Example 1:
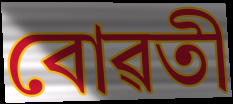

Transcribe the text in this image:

বোৱতী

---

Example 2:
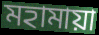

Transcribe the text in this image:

মহামায়া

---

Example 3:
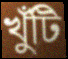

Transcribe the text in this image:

খুঁটি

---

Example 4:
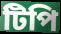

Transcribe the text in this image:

টিপি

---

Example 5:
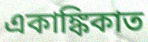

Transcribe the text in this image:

একাঙ্কিকাত